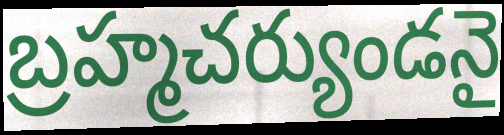
బ్రహ్మచర్యుండనై